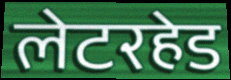
लेटरहेड